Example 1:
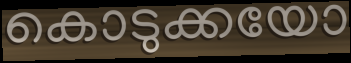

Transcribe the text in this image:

കൊടുക്കയോ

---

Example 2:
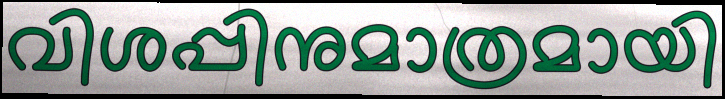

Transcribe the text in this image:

വിശപ്പിനുമാത്രമായി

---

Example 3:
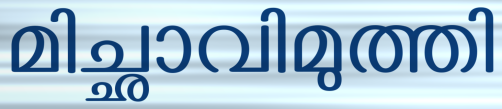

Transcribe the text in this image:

മിച്ഛാവിമുത്തി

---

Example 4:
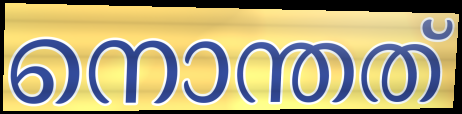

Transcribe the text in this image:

നൊന്തത്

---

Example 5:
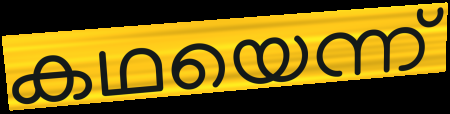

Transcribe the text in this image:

കഥയെന്ന്